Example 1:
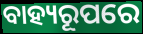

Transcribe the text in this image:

ବାହ୍ୟରୂପରେ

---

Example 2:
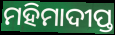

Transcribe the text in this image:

ମହିମାଦୀପ୍ତ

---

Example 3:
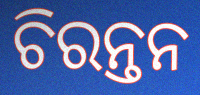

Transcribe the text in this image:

ଚିରନ୍ତନ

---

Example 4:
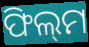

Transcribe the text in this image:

ଫିଲ୍‌ମ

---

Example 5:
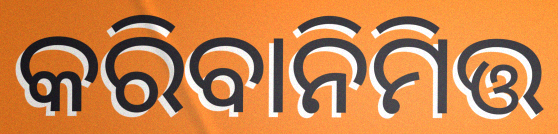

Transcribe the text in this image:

କରିବାନିମିତ୍ତ